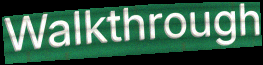
Walkthrough